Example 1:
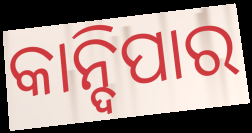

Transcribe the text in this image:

କାନ୍ଦିପାର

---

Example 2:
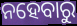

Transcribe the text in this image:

ନହେବାରୁ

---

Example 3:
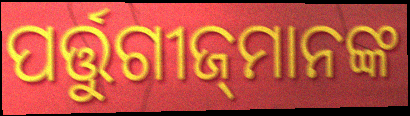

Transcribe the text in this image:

ପର୍ତ୍ତୁଗୀଜ୍‌ମାନଙ୍କ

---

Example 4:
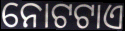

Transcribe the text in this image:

ନୋଟଟାଏ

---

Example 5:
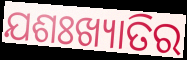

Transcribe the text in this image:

ଯଶଃଖ୍ୟାତିର